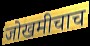
जोखमीचाच